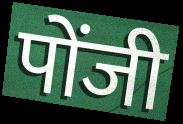
पोंजी